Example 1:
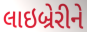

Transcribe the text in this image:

લાઇબ્રેરીને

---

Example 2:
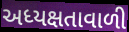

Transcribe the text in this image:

અધ્યક્ષતાવાળી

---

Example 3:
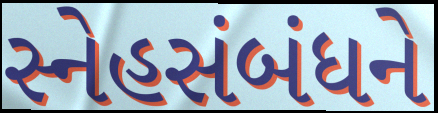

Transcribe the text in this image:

સ્નેહસંબંધને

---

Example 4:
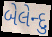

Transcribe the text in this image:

બેલેન્દુ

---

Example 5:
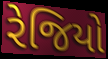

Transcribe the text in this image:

રેજિયો